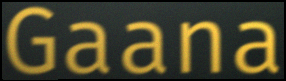
Gaana